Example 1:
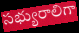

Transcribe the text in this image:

సభ్యురాలిగా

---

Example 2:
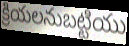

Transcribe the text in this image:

క్రియలనుబట్టియు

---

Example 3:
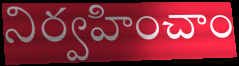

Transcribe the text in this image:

నిర్వహించాం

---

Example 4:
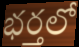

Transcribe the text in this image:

భర్తలో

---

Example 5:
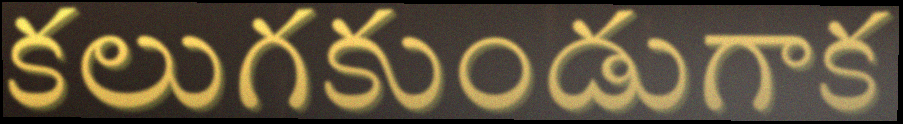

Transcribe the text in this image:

కలుగకుండుగాక